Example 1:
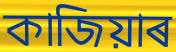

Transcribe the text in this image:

কাজিয়াৰ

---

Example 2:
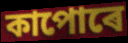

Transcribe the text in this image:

কাপোৰে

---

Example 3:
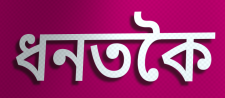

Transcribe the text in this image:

ধনতকৈ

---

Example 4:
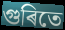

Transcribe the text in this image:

গুৰিতে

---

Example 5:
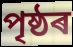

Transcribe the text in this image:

পৃষ্ঠৰ